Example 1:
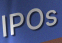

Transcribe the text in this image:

IPOs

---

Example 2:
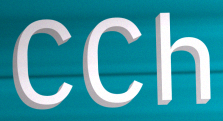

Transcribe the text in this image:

CCh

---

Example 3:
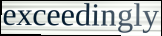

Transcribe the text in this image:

exceedingly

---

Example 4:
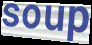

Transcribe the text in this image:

soup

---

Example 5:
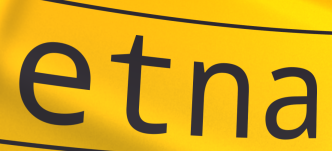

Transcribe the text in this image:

etna